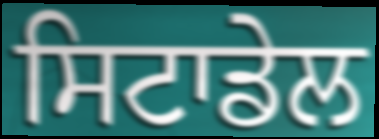
ਸਿਟਾਡੇਲ